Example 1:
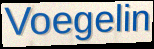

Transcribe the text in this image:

Voegelin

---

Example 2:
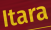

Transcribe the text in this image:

Itara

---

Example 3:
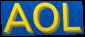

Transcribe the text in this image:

AOL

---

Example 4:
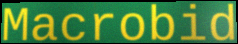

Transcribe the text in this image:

Macrobid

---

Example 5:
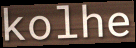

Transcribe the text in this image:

kolhe